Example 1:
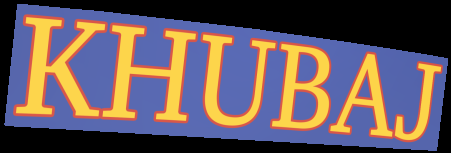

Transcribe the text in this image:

KHUBAJ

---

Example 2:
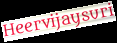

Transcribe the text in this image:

Heervijaysuri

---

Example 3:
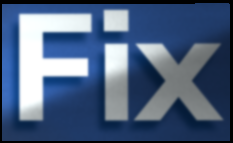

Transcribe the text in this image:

Fix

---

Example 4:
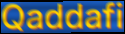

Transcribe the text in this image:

Qaddafi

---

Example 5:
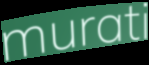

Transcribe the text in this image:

murati